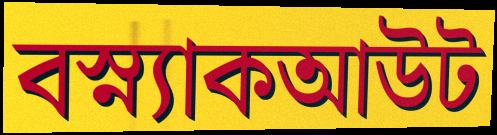
বস্ন্যাকআউট